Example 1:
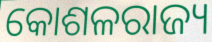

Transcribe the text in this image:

କୋଶଳରାଜ୍ୟ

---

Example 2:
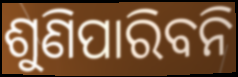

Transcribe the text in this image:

ଶୁଣିପାରିବନି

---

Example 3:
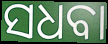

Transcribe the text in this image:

ସଧବା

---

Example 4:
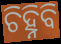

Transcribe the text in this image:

ଚିହ୍ନିବି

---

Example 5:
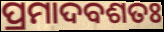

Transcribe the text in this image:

ପ୍ରମାଦବଶତଃ